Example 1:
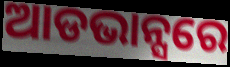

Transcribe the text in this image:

ଆଡଭାନ୍ସରେ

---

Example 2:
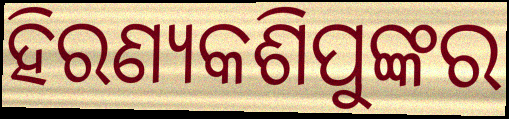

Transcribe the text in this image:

ହିରଣ୍ୟକଶିପୁଙ୍କର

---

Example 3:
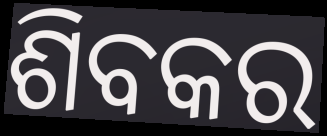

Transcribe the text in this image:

ଶିବକର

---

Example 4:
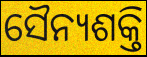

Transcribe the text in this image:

ସୈନ୍ୟଶକ୍ତି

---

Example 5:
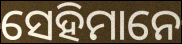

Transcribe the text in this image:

ସେହିମାନେ